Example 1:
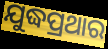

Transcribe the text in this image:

ଯୁଦ୍ଧପ୍ରଥାର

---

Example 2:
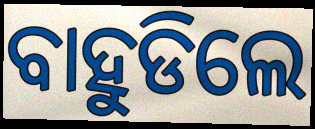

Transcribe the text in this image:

ବାହୁଡିଲେ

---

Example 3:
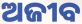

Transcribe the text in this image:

ଅଜୀବ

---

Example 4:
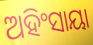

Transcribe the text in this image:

ଅହିଂସାୟା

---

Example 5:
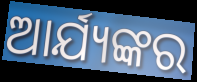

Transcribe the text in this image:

ଆର୍ଯ୍ୟଙ୍କର